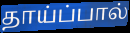
தாய்ப்பால்